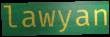
lawyan